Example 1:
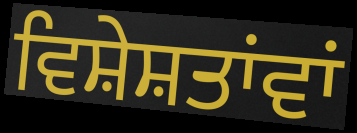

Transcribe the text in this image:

ਵਿਸ਼ੇਸ਼ਤਾਂਵਾਂ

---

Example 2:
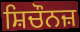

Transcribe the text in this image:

ਸ਼ਿਚੌਨਜ਼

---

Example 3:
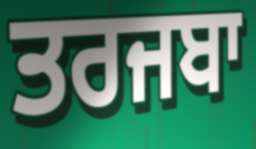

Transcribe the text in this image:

ਤਰਜਬਾ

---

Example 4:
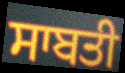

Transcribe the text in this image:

ਸਾਬਤੀ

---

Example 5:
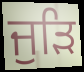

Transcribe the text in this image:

ਜੁੜਿ